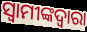
ସ୍ୱାମୀଙ୍କଦ୍ୱାରା